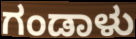
ಗಂಡಾಳು